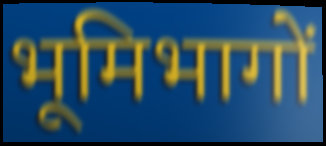
भूमिभागों